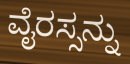
ವೈರಸ್ಸನ್ನು